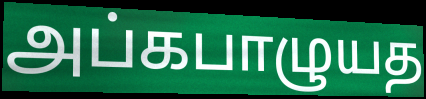
அப்கபாழுயத